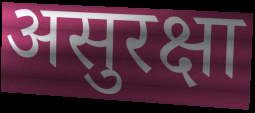
असुरक्षा